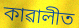
কাৱালীত